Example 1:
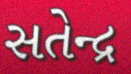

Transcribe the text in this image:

સતેન્દ્ર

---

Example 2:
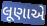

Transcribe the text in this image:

લૂણાએ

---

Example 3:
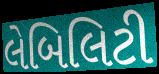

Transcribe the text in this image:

લેબિલિટી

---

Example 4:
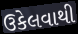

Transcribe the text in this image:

ઉકેલવાથી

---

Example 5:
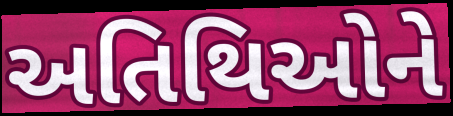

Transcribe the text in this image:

અતિથિઓને